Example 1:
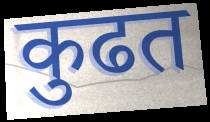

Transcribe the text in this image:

कुढत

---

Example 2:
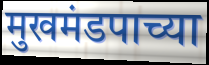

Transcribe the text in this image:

मुखमंडपाच्या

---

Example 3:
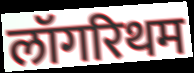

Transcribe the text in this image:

लॉगरिथम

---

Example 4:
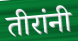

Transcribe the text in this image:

तीरांनी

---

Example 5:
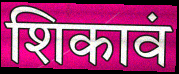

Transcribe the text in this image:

शिकावं